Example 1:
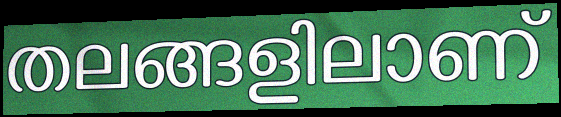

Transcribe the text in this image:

തലങ്ങളിലാണ്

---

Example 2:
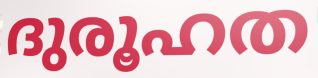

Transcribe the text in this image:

ദുരൂഹത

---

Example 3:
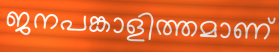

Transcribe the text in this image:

ജനപങ്കാളിത്തമാണ്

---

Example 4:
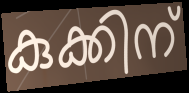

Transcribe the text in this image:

കുക്കിന്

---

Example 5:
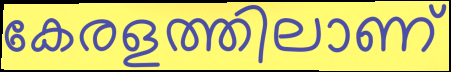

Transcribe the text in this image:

കേരളത്തിലാണ്